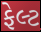
ફેલ્ટ